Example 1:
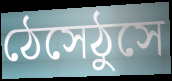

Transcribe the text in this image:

ঠেসেঠুসে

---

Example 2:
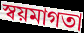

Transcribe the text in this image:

স্বয়মাগতা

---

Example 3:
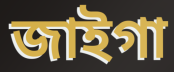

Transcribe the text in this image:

জাইগা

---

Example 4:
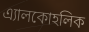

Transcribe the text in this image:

এ্যালকোহলিক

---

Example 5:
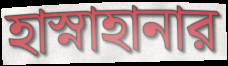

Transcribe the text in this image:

হাস্নাহানার